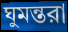
ঘুমন্তরা